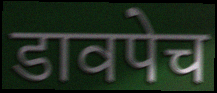
डावपेच